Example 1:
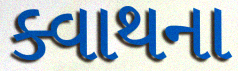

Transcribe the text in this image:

ક્વાથના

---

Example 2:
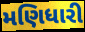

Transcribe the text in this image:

મણિધારી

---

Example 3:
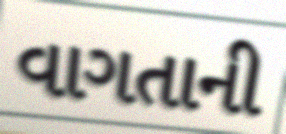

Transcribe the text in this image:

વાગતાની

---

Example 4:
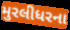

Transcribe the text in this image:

મુરલીધરના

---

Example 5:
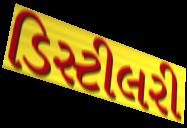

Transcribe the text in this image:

ડિસ્ટીલરી